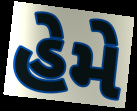
હેમે